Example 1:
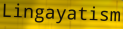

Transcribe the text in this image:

Lingayatism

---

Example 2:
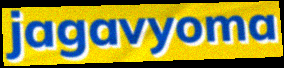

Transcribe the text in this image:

jagavyoma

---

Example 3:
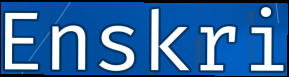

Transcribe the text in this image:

Enskri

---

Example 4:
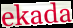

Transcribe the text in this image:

ekada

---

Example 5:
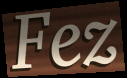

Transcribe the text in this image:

Fez